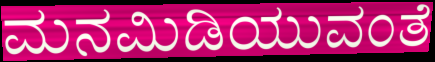
ಮನಮಿಡಿಯುವಂತೆ